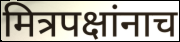
मित्रपक्षांनाच